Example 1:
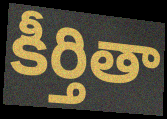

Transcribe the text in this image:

కీర్తితా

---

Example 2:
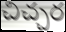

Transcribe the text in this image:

చిచ్చర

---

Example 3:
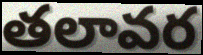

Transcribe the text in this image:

తలావర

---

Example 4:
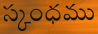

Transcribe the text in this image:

స్కంధము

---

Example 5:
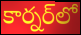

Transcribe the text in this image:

కార్నర్‌లో